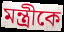
মন্ত্রীকে